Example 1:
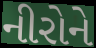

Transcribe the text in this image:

નીરોને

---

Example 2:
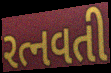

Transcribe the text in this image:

રત્નવતી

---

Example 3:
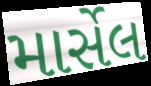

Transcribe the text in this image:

માર્સેલ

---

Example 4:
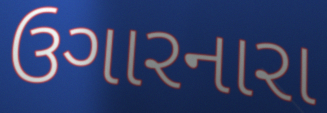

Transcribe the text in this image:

ઉગારનારા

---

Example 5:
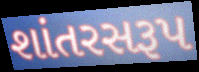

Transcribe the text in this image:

શાંતરસરૂપ